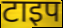
टाइप